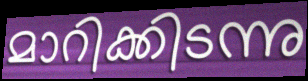
മാറിക്കിടന്നു